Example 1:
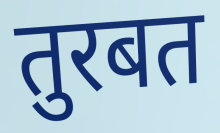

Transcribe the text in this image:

तुरबत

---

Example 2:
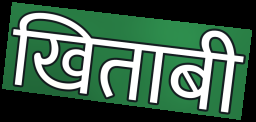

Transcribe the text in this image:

खिताबी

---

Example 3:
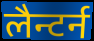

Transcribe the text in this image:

लैन्टर्न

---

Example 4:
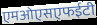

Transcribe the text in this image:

एमओएसएफईटी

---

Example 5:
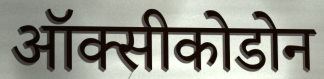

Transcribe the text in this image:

ऑक्सीकोडोन